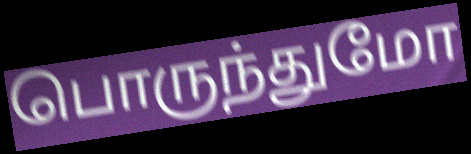
பொருந்துமோ